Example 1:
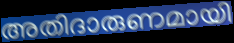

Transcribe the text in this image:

അതിദാരുണമായി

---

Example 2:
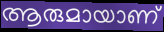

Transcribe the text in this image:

ആരുമായാണ്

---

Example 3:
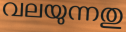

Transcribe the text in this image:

വലയുന്നതു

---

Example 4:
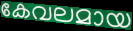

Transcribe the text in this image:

കേവലമായ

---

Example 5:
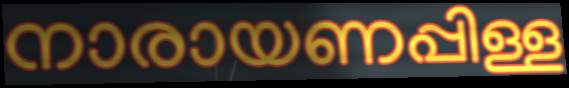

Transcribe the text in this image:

നാരായണപ്പിള്ള